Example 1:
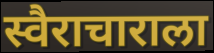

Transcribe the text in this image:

स्वैराचाराला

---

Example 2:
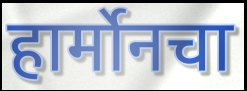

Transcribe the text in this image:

हार्मोनचा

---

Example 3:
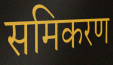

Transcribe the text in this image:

समिकरण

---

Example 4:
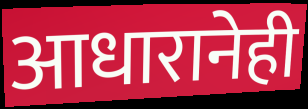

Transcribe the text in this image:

आधारानेही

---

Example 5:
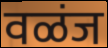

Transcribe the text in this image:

वळंज